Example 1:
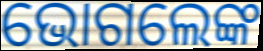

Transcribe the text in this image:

ଭୋଗଲେଙ୍କ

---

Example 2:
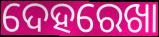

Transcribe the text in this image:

ଦେହରେଖା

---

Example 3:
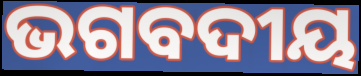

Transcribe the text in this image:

ଭଗବଦୀୟ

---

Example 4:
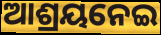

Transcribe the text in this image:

ଆଶ୍ରୟନେଇ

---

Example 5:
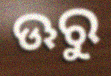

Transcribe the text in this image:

ଊରୁ